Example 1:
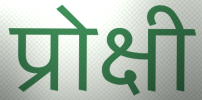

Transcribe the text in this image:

प्रोक्षी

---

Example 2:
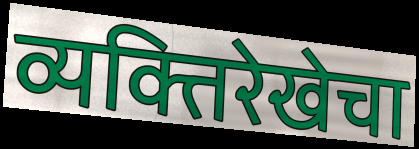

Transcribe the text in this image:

व्यक्तिरेखेचा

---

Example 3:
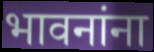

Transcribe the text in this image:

भावनांना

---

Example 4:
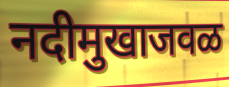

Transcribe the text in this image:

नदीमुखाजवळ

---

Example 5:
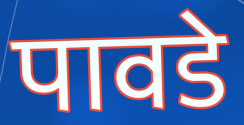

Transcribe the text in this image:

पावडे